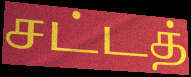
சட்டத்